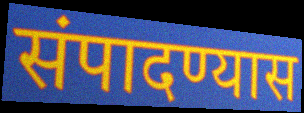
संपादण्यास